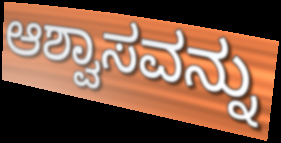
ಆಶ್ವಾಸವನ್ನು